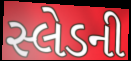
સ્લેડની